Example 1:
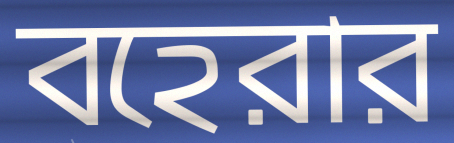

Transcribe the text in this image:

বহেরার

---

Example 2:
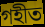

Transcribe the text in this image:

গহীত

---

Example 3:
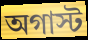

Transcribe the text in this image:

অগাস্ট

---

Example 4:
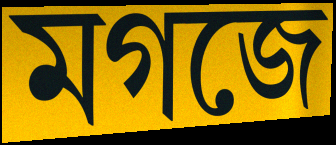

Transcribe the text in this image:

মগজে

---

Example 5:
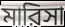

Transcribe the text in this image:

মারিসা